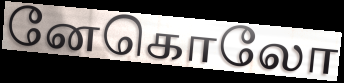
னேகொலோ